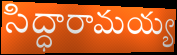
సిద్ధారామయ్య